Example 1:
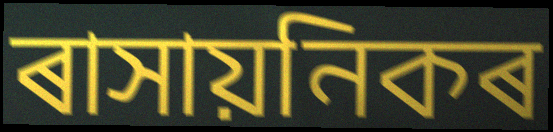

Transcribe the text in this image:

ৰাসায়নিকৰ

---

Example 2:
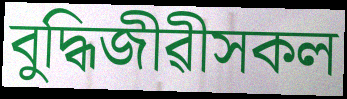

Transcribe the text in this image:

বুদ্ধিজীৱীসকল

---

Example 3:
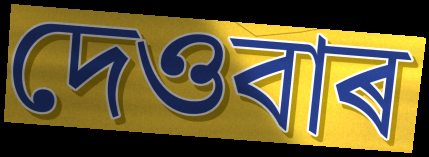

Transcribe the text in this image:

দেওবাৰ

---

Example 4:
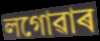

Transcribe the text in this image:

লগোৱাৰ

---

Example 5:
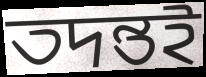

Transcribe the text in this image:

তদন্তই